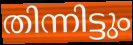
തിന്നിട്ടും